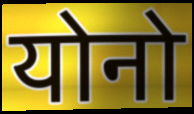
योनो